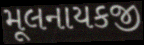
મૂલનાયકજી